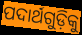
ପଦାର୍ଥଗୁଡ଼ିକୁ